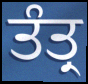
ਤੰਤ੍ਰ